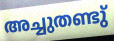
അച്ചുതണ്ടു്